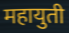
महायुती